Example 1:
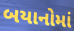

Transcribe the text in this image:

બયાનોમાં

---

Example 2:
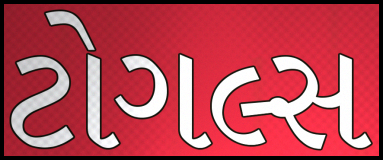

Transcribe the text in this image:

ટોગલ્સ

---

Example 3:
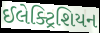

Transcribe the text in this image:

ઈલેક્ટ્રિશિયન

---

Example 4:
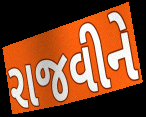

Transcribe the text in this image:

રાજવીને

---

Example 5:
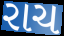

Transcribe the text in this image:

રાચ